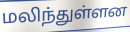
மலிந்துள்ளன